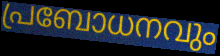
പ്രബോധനവും